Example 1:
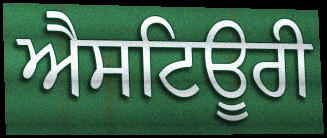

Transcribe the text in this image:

ਐਸਟਿਊਰੀ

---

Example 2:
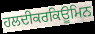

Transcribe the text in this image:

ਹਲਦੀਕਰਕਿਊਮਿਨ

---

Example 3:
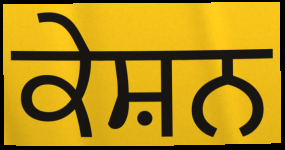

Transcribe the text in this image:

ਕੇਸ਼ਨ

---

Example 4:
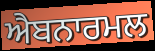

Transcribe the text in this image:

ਐਬਨਾਰਮਲ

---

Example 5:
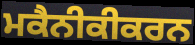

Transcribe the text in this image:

ਮਕੈਨੀਕੀਕਰਨ